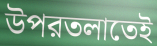
উপরতলাতেই